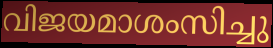
വിജയമാശംസിച്ചു